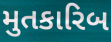
મુતકારિબ